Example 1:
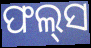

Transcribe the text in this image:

ଫଲ୍‌ସ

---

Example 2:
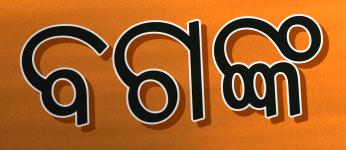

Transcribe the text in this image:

ବଗଙ୍କ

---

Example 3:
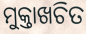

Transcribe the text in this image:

ମୁକ୍ତାଖଚିତ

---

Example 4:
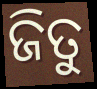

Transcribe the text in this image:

ଜିତୁ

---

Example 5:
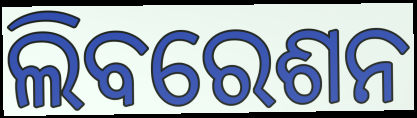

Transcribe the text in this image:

ଲିବରେଶନ